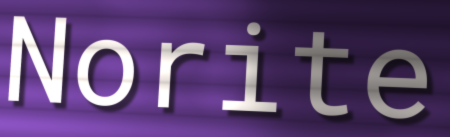
Norite